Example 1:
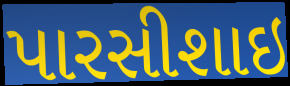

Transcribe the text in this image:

પારસીશાઇ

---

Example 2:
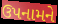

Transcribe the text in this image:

ઉપનામને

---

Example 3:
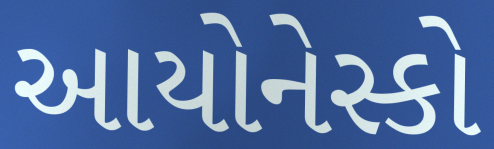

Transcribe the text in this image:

આયોનેસ્કો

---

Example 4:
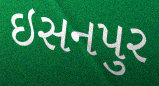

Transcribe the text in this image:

ઇસનપુર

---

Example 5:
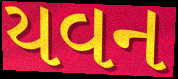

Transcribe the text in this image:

યવન